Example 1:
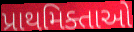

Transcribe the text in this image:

પ્રાથમિક્તાઓ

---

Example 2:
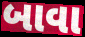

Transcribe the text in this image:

બાવા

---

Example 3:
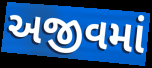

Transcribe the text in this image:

અજીવમાં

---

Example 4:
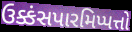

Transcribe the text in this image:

ઉક્કંસપારમિપ્પત્તો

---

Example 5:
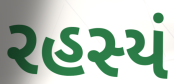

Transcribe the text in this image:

રહસ્યં